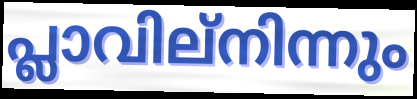
പ്ലാവില്നിന്നും